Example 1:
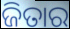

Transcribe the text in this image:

ଜିତାର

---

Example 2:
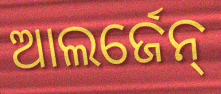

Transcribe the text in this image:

ଆଲର୍ଜେନ୍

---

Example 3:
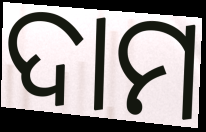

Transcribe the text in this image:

ଦାମ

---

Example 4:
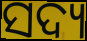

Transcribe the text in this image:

ସଦ୍ୟ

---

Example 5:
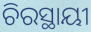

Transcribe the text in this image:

ଚିରସ୍ଥାୟୀ